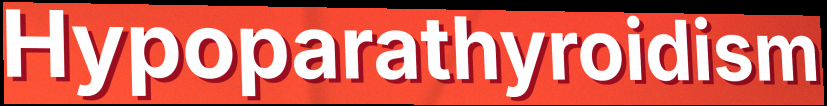
Hypoparathyroidism